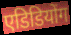
एडिडियोंग